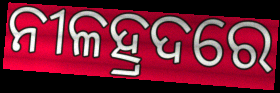
ନୀଳହ୍ରଦରେ